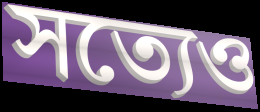
সত্যেও